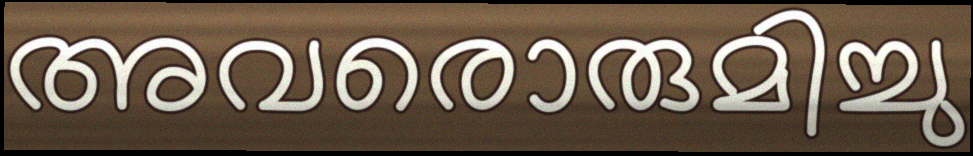
അവരൊരുമിച്ചു